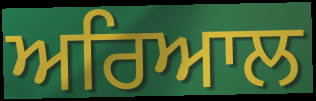
ਅਰਿਆਲ